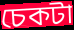
চেকটা